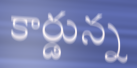
కార్డున్న